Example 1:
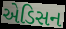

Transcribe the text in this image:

એડિસન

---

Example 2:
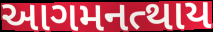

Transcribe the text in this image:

આગમનત્થાય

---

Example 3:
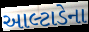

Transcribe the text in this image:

આલ્ટાડેના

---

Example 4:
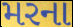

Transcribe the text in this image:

મરના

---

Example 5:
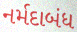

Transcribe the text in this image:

નર્મદાબંધ